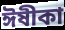
ঈষীকা